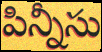
పిన్నీసు